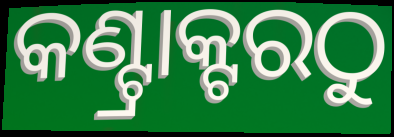
କଣ୍ଟ୍ରାକ୍ଟରଠୁ